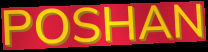
POSHAN